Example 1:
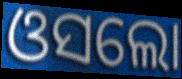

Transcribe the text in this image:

ଓସଲୋ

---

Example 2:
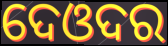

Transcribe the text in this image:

ଦେଓଦର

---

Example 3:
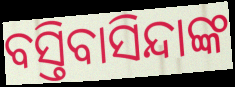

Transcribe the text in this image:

ବସ୍ତିବାସିନ୍ଦାଙ୍କ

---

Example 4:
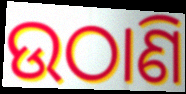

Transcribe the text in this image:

ଉଠାଣି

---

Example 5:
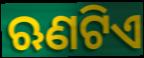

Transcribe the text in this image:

ଋଣଟିଏ